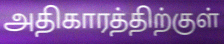
அதிகாரத்திற்குள்